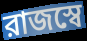
রাজস্বে